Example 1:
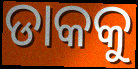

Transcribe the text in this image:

ଡାକକୁ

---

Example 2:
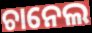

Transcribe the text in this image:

ଚାନେଲ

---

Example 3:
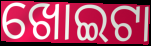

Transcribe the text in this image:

ଖୋଇଟା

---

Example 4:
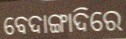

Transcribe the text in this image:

ବେଦାଙ୍ଗାଦିରେ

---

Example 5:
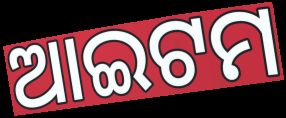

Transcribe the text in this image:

ଆଇଟମ